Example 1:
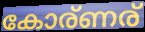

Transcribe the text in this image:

കോര്ണര്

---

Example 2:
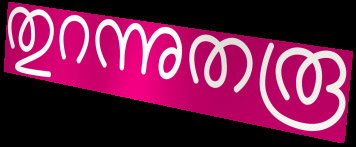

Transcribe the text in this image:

തുറന്നുതരൂ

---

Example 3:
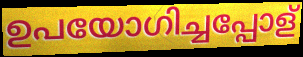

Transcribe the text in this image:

ഉപയോഗിച്ചപ്പോള്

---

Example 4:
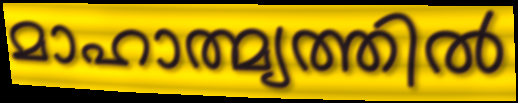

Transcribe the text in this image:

മാഹാത്മ്യത്തിൽ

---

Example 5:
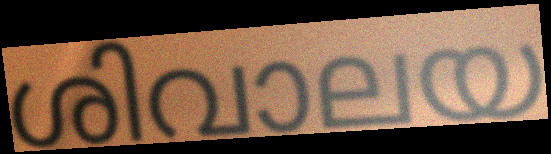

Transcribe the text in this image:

ശിവാലയ